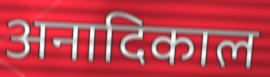
अनादिकाल